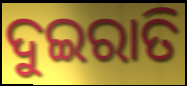
ଦୁଇରାତି